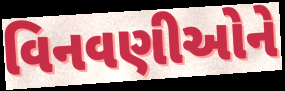
વિનવણીઓને